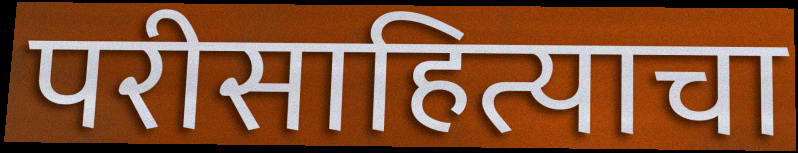
परीसाहित्याचा